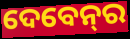
ଦେବେନ୍‌ର